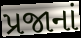
પ્રજાનાં